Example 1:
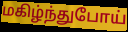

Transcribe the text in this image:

மகிழ்ந்துபோய்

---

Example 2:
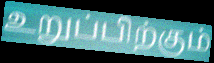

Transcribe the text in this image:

உறுப்பிற்கும்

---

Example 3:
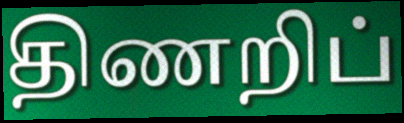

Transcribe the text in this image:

திணறிப்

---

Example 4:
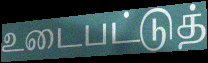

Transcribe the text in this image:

உடைபட்டுத்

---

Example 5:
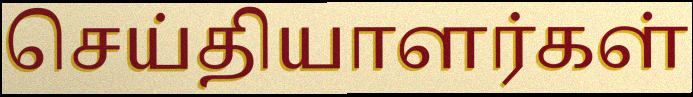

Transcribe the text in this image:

செய்தியாளர்கள்